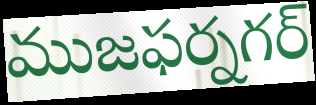
ముజఫర్నగర్